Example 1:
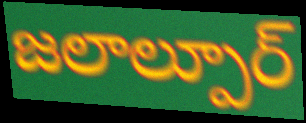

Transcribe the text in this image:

జలాల్పూర్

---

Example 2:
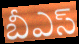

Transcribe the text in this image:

బీఎస్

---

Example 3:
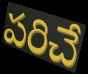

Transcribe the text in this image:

పరిచే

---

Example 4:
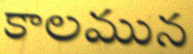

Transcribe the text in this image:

కాలమున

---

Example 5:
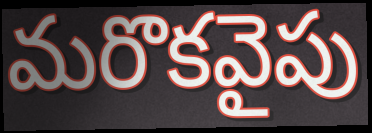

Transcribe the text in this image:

మరొకవైపు